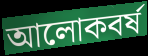
আলোকবৰ্ষ